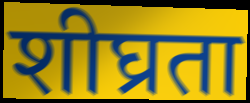
शीघ्रता